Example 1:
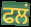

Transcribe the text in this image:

ਫਲਂ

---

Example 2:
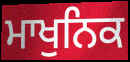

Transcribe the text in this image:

ਮਾਖੁਨਿਕ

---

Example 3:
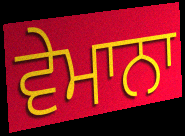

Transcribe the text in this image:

ਵੇਮਾਨਾ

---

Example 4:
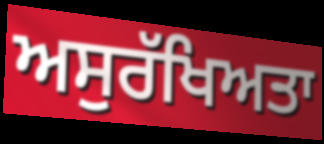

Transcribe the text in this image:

ਅਸੁਰੱਖਿਅਤਾ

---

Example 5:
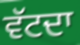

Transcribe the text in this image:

ਵੱਟਦਾ